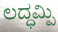
ಲದ್ಧಮ್ಪಿ